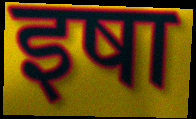
इषा